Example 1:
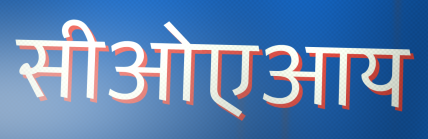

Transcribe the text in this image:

सीओएआय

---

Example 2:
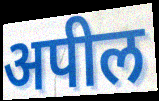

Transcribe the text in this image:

अपील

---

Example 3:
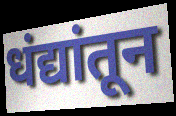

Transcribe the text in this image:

धंद्यांतून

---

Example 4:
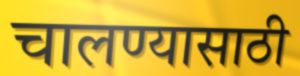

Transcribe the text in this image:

चालण्यासाठी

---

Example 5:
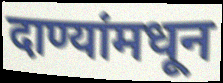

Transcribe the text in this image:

दाण्यांमधून